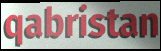
qabristan